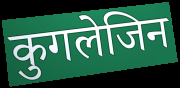
कुगलेजिन